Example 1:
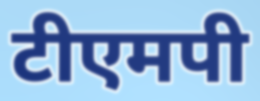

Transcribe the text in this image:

टीएमपी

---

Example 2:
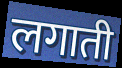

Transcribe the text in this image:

लगाती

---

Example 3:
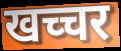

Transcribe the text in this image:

खच्चर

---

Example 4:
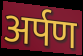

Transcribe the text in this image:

अर्पण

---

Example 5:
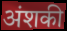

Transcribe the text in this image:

अंशकी